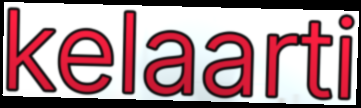
kelaarti